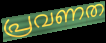
പ്രവണത